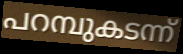
പറമ്പുകടന്ന്